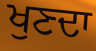
ਖੁਣਦਾ